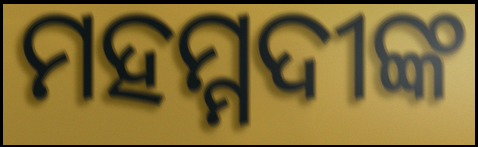
ମହମ୍ମଦୀଙ୍କ